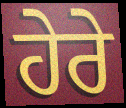
ਹੇਰੇ